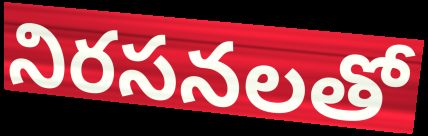
నిరసనలతో